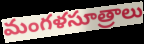
మంగళసూత్రాలు